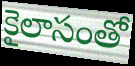
కైలాసంతో